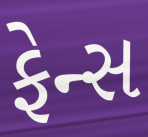
ફેન્સ